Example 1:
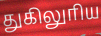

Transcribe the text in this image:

துகிலுரிய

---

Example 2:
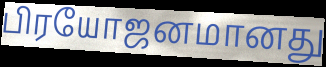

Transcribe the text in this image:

பிரயோஜனமானது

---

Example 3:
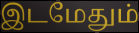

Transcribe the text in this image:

இடமேதும்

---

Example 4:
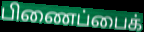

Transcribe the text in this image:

பிணைப்பைக்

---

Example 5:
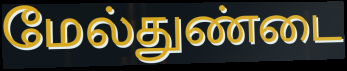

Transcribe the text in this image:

மேல்துண்டை